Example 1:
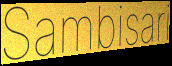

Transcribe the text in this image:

Sambisari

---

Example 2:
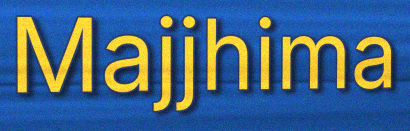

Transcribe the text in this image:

Majjhima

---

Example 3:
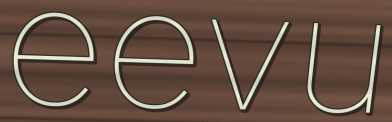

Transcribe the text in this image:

eevu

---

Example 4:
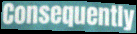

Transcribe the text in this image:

Consequently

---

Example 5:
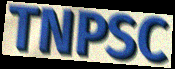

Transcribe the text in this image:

TNPSC